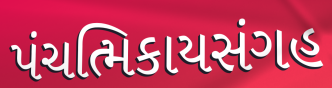
પંચત્મિકાયસંગહ